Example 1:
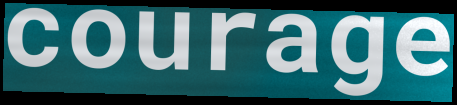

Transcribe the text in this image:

courage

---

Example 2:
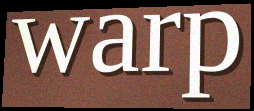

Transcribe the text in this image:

warp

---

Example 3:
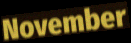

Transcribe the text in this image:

November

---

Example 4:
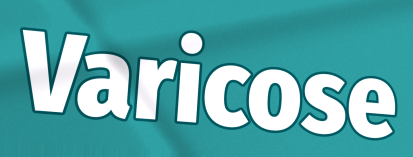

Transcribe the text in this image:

Varicose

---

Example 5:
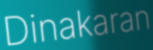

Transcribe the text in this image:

Dinakaran